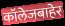
कॉलेजबाहेर